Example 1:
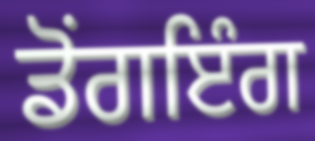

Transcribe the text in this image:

ਡੋਂਗਇੰਗ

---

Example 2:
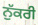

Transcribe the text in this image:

ਨੁੱਕਰੀ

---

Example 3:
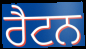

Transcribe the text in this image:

ਰੈਟਨ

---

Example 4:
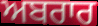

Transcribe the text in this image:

ਅਬਰਾਰ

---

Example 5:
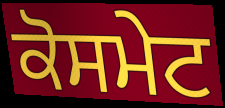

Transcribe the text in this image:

ਕੋਸਮੇਟ